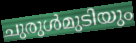
ചുരുൾമുടിയും